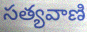
సత్యవాణి